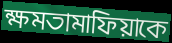
ক্ষমতামাফিয়াকে